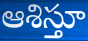
ఆశిస్తూ